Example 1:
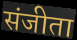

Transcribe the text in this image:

संजीता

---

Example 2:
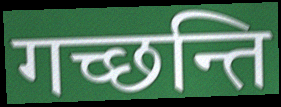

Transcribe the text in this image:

गच्छन्ति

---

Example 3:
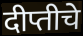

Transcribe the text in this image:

दीप्तीचे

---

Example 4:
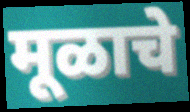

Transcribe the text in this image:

मूळाचे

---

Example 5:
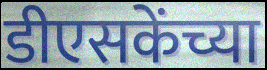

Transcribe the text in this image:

डीएसकेंच्या